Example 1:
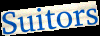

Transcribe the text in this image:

Suitors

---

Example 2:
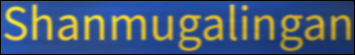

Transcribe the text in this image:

Shanmugalingan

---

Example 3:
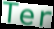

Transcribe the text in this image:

Ter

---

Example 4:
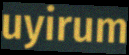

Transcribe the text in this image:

uyirum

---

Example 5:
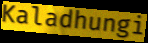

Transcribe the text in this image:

Kaladhungi